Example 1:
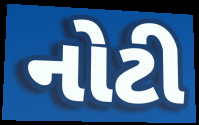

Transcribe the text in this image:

નોટી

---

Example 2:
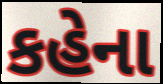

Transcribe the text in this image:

કહેના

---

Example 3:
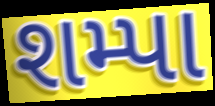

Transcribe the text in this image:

શમ્પા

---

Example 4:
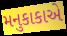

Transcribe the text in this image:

મનુકાકાએ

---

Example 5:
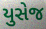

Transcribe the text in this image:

યુસેજ